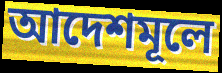
আদেশমূলে